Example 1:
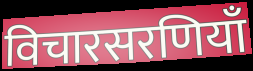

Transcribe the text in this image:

विचारसरणियाँ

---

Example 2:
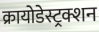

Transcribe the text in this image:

क्रायोडेस्ट्रक्शन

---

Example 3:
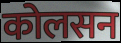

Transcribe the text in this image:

कोलसन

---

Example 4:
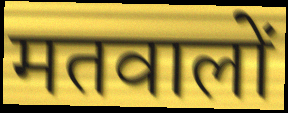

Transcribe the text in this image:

मतवालों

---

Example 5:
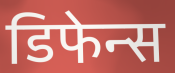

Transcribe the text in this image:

डिफेन्स